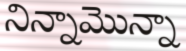
నిన్నామొన్నా